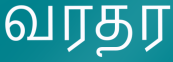
வரதர